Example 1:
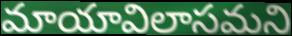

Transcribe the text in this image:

మాయావిలాసమని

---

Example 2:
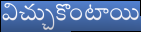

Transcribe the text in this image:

విచ్చుకొంటాయి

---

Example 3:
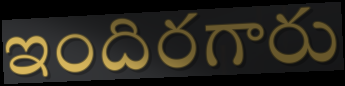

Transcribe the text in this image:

ఇందిరగారు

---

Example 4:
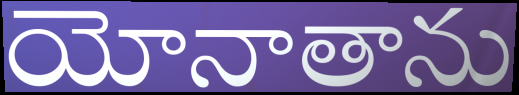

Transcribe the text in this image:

యోనాతాను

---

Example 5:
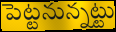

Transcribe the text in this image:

పెట్టనున్నట్టు